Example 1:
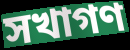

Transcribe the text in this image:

সখাগণ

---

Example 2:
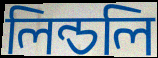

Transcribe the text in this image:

লিন্ডলি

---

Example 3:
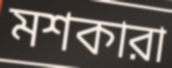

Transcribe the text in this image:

মশকারা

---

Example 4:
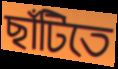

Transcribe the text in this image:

ছাঁটিতে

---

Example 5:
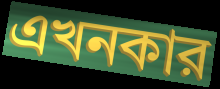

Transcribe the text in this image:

এখনকার